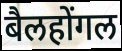
बैलहोंगल